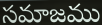
సమాజము